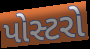
પોસ્ટરો